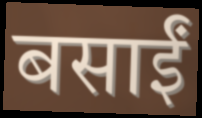
बसाईं